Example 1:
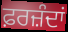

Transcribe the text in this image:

ਫ਼ਰਜ਼ੰਦਾਂ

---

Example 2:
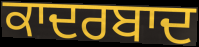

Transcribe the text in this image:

ਕਾਦਰਬਾਦ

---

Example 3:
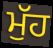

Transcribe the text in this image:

ਮੁੱਹ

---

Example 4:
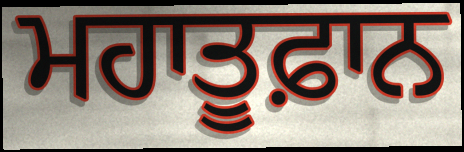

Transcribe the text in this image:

ਮਹਾਤੂਫ਼ਾਨ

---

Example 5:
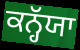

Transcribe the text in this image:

ਕਨ੍ਹੱਯਾ